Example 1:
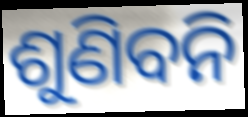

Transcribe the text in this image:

ଶୁଣିବନି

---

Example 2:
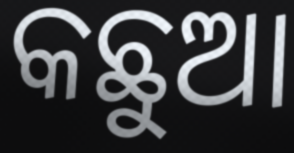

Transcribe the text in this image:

କଛୁଆ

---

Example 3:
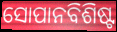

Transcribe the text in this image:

ସୋପାନବିଶିଷ୍ଟ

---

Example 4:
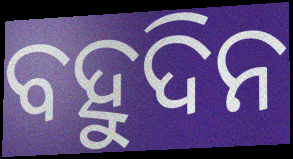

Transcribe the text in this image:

ବହୁଦିନ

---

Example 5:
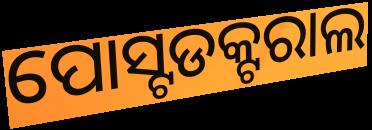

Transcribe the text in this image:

ପୋସ୍ଟଡକ୍ଟରାଲ